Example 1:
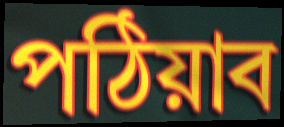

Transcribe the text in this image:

পঠিয়াব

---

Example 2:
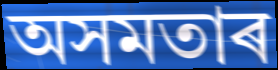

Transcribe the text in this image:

অসমতাৰ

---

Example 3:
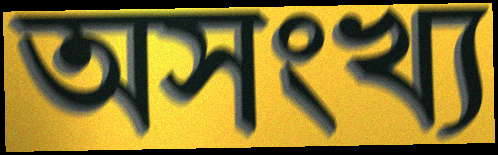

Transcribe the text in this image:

অসংখ্য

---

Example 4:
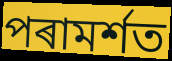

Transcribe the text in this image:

পৰামৰ্শত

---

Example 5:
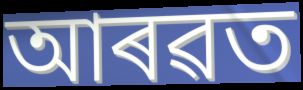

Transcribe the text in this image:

আৰৱত